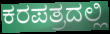
ಕರಪತ್ರದಲ್ಲಿ